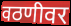
वठणीवर